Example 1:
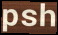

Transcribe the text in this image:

psh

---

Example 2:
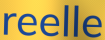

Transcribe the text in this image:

reelle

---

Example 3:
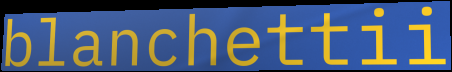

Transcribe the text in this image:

blanchettii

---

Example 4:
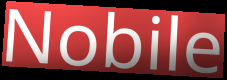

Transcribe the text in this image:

Nobile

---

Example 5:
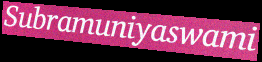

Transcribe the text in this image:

Subramuniyaswami